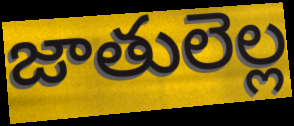
జాతులెల్ల